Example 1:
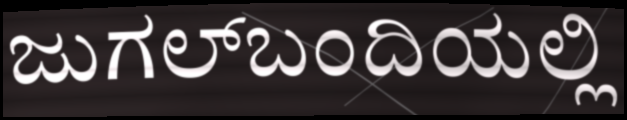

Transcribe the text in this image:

ಜುಗಲ್‌ಬಂದಿಯಲ್ಲಿ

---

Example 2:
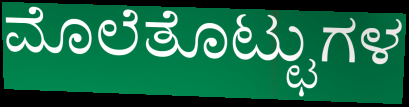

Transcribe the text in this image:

ಮೊಲೆತೊಟ್ಟುಗಳ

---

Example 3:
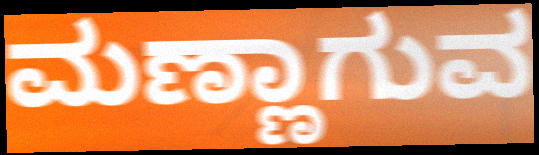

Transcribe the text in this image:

ಮಣ್ಣಾಗುವ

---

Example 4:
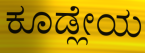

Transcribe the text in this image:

ಕೂಡ್ಲೇಯ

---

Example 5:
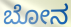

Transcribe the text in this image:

ಬೋನ